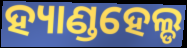
ହ୍ୟାଣ୍ଡହେଲ୍ଡ